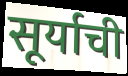
सूर्याची